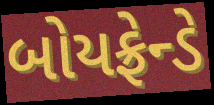
બોયફ્રેન્ડે